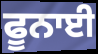
ਫੂਨਾਈ